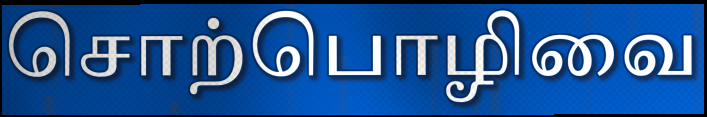
சொற்பொழிவை